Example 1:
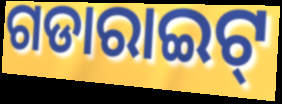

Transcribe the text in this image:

ଗଡାରାଇଟ୍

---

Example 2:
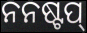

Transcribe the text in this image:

ନନଷ୍ଟପ୍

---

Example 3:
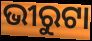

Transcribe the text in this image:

ଭୀରୁଟା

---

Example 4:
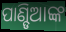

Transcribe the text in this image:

ପାଣ୍ଡିଆଙ୍କ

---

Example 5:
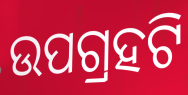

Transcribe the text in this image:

ଉପଗ୍ରହଟି